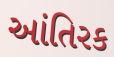
આંતિરક